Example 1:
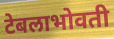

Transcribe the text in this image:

टेबलाभोवती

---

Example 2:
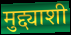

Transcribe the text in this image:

मुद्द्याशी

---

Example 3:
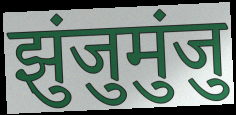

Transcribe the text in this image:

झुंजुमुंजु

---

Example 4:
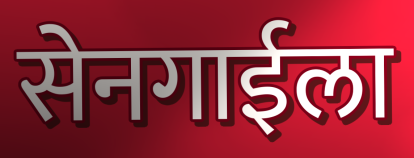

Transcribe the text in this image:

सेनगाईला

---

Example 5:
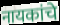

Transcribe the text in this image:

नायकांचे